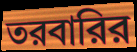
তরবারির